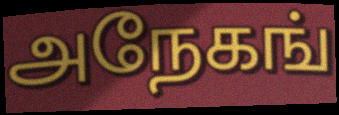
அநேகங்